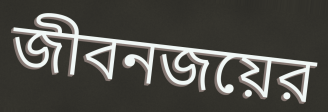
জীবনজয়ের